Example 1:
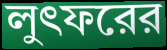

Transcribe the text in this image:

লুৎফরের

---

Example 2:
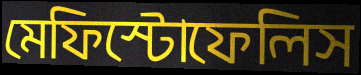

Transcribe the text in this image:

মেফিস্টোফেলিস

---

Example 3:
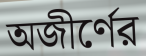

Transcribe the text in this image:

অজীর্ণের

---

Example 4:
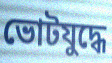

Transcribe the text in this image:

ভোটযুদ্ধে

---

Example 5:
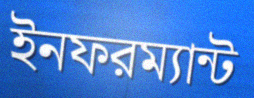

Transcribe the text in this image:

ইনফরম্যান্ট